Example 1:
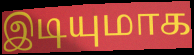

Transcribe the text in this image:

இடியுமாக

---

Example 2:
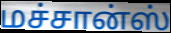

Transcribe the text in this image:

மச்சான்ஸ்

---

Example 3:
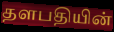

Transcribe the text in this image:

தளபதியின்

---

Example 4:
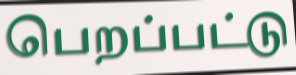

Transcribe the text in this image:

பெறப்பட்டு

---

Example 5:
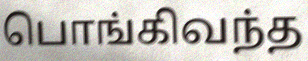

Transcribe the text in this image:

பொங்கிவந்த